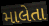
માલેતા